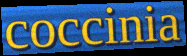
coccinia